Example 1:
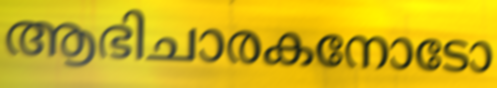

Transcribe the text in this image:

ആഭിചാരകനോടോ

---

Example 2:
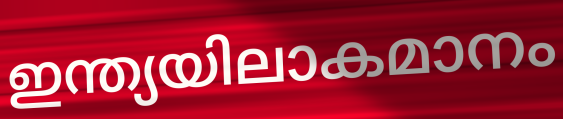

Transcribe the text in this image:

ഇന്ത്യയിലാകമാനം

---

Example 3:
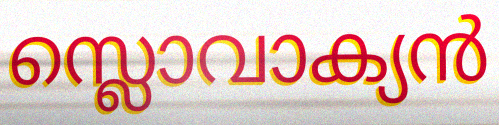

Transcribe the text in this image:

സ്ലൊവാക്യൻ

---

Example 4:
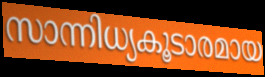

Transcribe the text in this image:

സാന്നിധ്യകൂടാരമായ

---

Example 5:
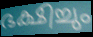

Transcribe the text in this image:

ഭക്ഷിച്ചും